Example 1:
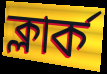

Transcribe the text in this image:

ক্লার্ক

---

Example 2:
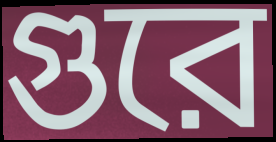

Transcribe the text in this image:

গুরে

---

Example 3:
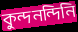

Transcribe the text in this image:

কুন্দনন্দিনি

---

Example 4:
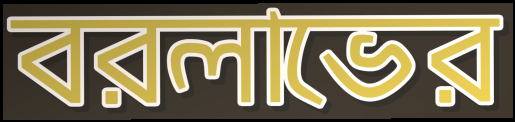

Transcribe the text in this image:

বরলাভের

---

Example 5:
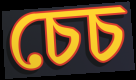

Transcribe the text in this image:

চেচ